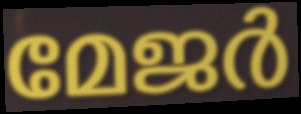
മേജർ